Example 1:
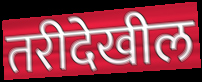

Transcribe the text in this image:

तरीदेखील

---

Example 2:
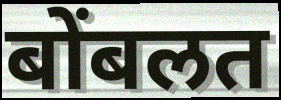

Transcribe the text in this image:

बोंबलत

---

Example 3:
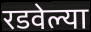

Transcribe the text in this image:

रडवेल्या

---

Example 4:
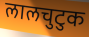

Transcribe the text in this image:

लालचुटुक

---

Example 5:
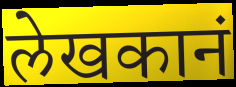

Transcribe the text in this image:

लेखकानं